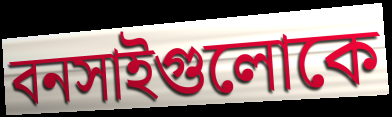
বনসাইগুলোকে